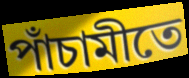
পাঁচামীতে